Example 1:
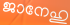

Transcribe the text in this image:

ജാനേഹു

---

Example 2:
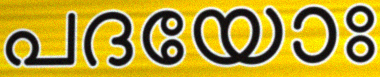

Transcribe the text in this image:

പദയോഃ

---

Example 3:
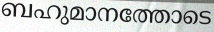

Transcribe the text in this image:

ബഹുമാനത്തോടെ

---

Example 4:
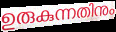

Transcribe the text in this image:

ഉരുകുന്നതിനും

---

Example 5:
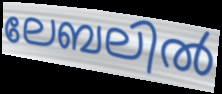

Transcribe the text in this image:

ലേബലിൽ